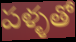
పళ్ళతో